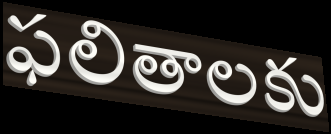
ఫలితాలకు